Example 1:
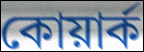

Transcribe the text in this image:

কোয়ার্ক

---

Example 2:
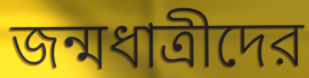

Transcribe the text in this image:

জন্মধাত্রীদের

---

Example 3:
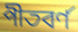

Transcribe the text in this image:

পীতবর্ণ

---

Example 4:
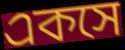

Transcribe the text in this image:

একসে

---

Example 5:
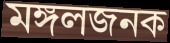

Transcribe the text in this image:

মঙ্গলজনক